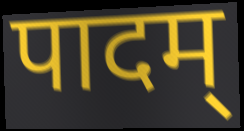
पादम्